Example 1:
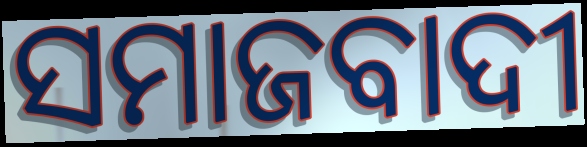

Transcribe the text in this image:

ସମାଜବାଦୀ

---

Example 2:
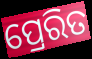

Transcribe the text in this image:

ପ୍ରେରିତ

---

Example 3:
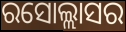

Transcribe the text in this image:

ରସୋଲ୍ଲାସର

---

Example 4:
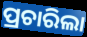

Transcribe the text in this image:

ପ୍ରଚାରିଲା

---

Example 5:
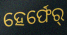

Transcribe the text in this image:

ହେର୍ଫେର୍